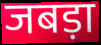
जबड़ा